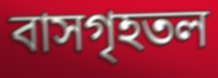
বাসগৃহতল